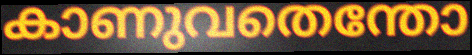
കാണുവതെന്തോ